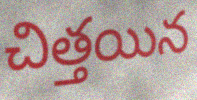
చిత్తయిన